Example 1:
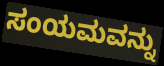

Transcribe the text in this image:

ಸಂಯಮವನ್ನು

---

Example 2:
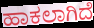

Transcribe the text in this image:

ಹಾಕಲಾಗಿದೆ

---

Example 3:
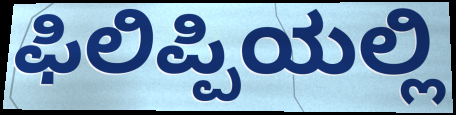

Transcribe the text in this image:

ಫಿಲಿಪ್ಪಿಯಲ್ಲಿ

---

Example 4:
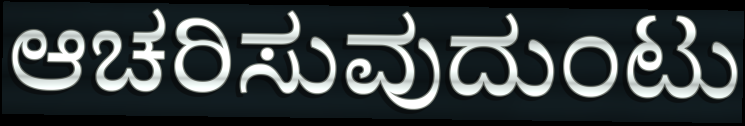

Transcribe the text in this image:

ಆಚರಿಸುವುದುಂಟು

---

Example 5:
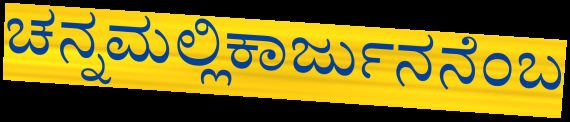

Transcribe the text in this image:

ಚನ್ನಮಲ್ಲಿಕಾರ್ಜುನನೆಂಬ